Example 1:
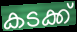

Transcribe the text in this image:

കടക്ക്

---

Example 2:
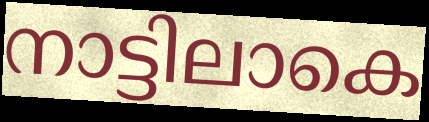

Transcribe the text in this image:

നാട്ടിലാകെ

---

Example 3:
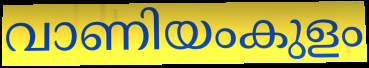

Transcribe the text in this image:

വാണിയംകുളം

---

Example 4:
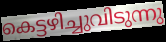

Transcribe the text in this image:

കെട്ടഴിച്ചുവിടുന്നു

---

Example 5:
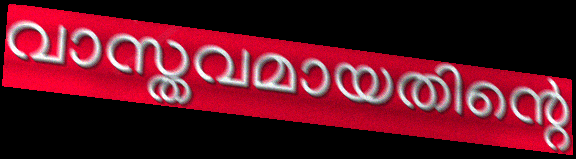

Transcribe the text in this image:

വാസ്തവമായതിന്റെ